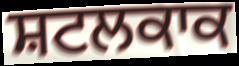
ਸ਼ਟਲਕਾਕ